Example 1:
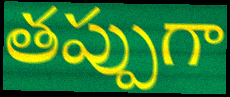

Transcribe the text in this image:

తప్పుగా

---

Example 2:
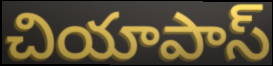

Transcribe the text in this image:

చియాపాస్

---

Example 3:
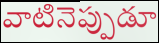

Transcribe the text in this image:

వాటినెప్పుడూ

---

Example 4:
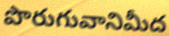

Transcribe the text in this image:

పొరుగువానిమీద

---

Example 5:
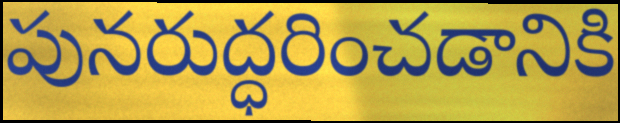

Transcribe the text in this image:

పునరుద్ధరించడానికి